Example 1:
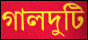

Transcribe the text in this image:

গালদুটি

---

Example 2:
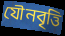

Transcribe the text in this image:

যৌনবৃত্তি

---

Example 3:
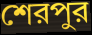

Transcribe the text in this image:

শেরপুর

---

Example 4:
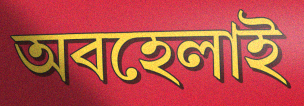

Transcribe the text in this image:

অবহেলাই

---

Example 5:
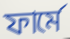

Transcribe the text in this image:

ফার্মে